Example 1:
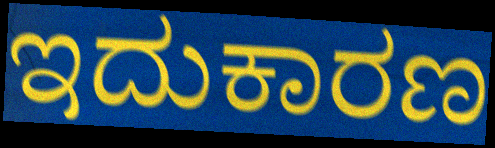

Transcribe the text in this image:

ಇದುಕಾರಣ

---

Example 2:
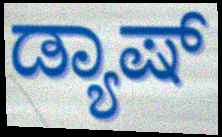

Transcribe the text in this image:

ಡ್ಯಾಷ್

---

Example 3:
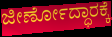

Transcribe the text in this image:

ಜೀರ್ಣೋದ್ಧಾರಕ್ಕೆ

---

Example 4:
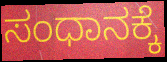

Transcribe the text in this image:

ಸಂಧಾನಕ್ಕೆ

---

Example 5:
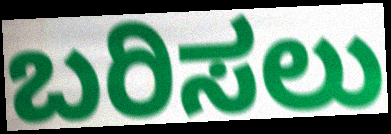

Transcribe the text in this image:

ಬರಿಸಲು